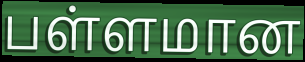
பள்ளமான